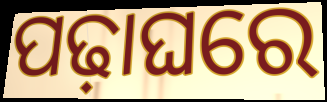
ପଢ଼ାଘରେ